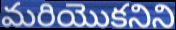
మరియొకనిని